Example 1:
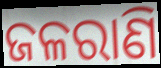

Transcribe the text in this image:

ଜଳରାଣି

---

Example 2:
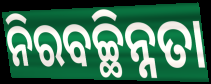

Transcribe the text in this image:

ନିରବଚ୍ଛିନ୍ନତା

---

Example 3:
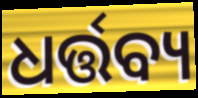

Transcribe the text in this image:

ଧର୍ତ୍ତବ୍ୟ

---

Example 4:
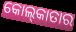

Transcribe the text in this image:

କୋଲ୍‍କାତାର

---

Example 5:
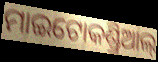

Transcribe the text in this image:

ମାଇଟୋକଣ୍ଡ୍ରିଆଲ୍